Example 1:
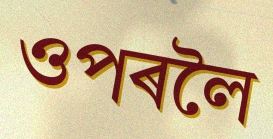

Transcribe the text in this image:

ওপৰলৈ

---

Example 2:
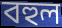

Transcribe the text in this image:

বহুল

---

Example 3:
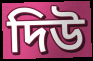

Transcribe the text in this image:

দিউ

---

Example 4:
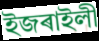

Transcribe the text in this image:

ইজৰাইলী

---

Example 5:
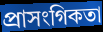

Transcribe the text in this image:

প্ৰাসংগিকতা